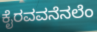
ಕೈರವವನೆನಲೆಂ